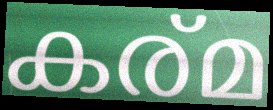
കര്മ